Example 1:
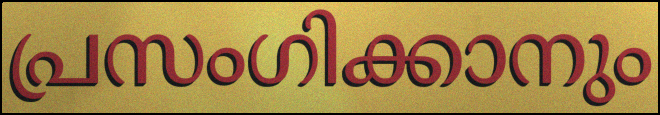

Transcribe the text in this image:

പ്രസംഗിക്കാനും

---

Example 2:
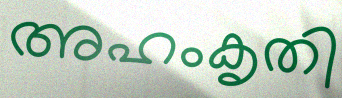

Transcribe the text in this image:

അഹംകൃതി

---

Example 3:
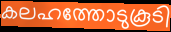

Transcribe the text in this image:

കലഹത്തോടുകൂടി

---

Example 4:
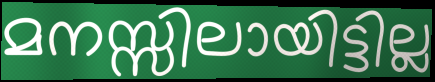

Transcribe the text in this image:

മനസ്സിലായിട്ടില്ല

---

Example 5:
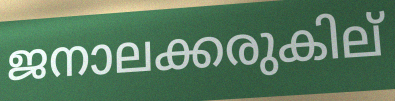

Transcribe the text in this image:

ജനാലക്കരുകില്